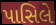
પાસિલે